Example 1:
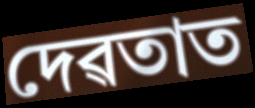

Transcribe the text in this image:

দেৱতাত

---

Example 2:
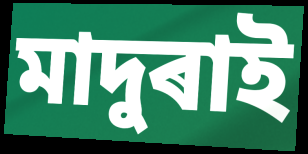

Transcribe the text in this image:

মাদুৰাই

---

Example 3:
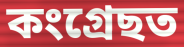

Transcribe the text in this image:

কংগ্ৰেছত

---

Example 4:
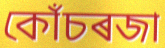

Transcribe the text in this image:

কোঁচৰজা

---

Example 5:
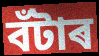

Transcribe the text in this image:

বঁটাৰ